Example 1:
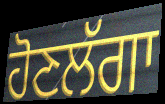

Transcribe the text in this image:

ਹੋਣਲੱਗਾ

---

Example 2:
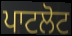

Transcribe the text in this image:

ਪਾਟਲੋਟ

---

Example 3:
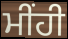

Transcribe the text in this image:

ਮੀਂਹੀ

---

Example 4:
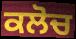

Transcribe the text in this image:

ਕਲੋਚ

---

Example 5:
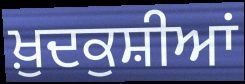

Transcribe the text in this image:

ਖ਼ੁਦਕੁਸ਼ੀਆਂ